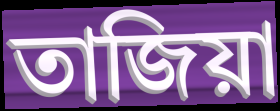
তাজিয়া